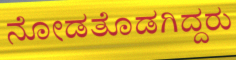
ನೋಡತೊಡಗಿದ್ದರು